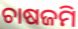
ଚାଷଜମି